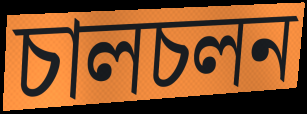
চালচলন